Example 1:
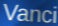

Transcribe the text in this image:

Vanci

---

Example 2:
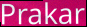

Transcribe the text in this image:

Prakar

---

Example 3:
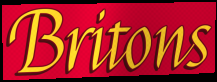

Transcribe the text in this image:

Britons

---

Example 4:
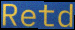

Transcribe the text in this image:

Retd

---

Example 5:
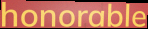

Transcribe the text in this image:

honorable